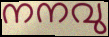
നനവു